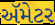
ઍમેટર